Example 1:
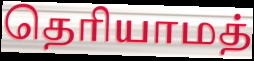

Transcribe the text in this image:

தெரியாமத்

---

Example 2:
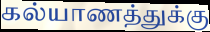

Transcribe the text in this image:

கல்யாணத்துக்கு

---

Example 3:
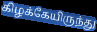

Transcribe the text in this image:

கிழக்கேயிருந்து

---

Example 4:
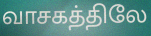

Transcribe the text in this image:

வாசகத்திலே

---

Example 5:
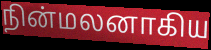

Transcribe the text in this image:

நின்மலனாகிய